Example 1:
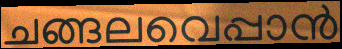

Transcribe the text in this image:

ചങ്ങലവെപ്പാൻ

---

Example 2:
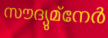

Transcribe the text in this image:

സൗദ്യുമ്നേർ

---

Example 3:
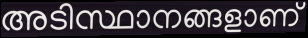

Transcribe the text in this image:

അടിസ്ഥാനങ്ങളാണ്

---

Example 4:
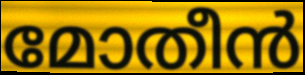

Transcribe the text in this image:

മോതീൻ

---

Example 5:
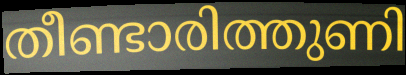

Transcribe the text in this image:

തീണ്ടാരിത്തുണി